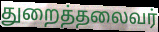
துறைத்தலைவர்